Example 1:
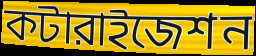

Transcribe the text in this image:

কটারাইজেশন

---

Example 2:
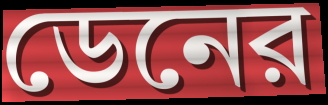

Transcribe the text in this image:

ডেনের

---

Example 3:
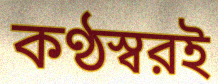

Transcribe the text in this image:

কণ্ঠস্বরই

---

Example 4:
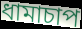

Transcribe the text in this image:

ধামাচাপ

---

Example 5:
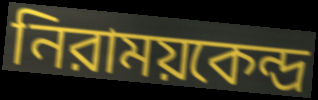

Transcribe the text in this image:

নিরাময়কেন্দ্র